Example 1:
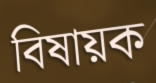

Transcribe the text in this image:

বিষায়ক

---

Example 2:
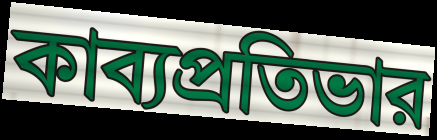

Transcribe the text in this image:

কাব্যপ্রতিভার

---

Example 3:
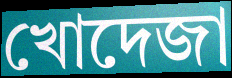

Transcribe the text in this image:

খোদেজা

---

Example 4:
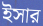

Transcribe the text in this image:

ইসার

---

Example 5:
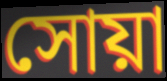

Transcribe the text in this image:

সোয়া